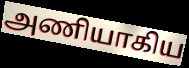
அணியாகிய